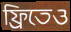
ফ্রিতেও